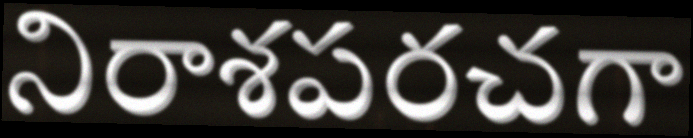
నిరాశపరచగా